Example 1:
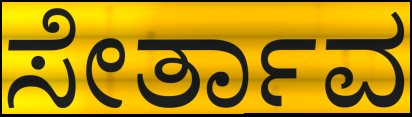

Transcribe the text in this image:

ಸೇರ್ತಾವ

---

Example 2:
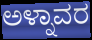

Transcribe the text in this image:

ಅಳ್ನಾವರ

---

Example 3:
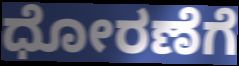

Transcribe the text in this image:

ಧೋರಣೆಗೆ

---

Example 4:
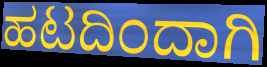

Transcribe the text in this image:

ಹಟದಿಂದಾಗಿ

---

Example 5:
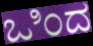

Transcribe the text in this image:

ಒಿಂದ